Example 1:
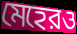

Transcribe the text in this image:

মেহেরও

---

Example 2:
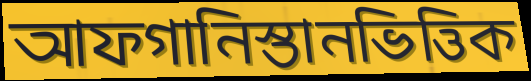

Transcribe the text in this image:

আফগানিস্তানভিত্তিক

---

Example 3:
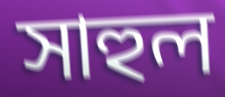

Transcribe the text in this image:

সাহুল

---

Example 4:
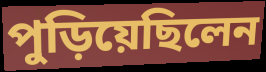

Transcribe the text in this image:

পুড়িয়েছিলেন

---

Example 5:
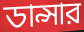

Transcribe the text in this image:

ডান্সার